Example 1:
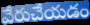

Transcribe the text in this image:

వేరుచేయడం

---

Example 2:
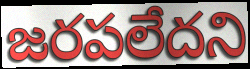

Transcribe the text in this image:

జరపలేదని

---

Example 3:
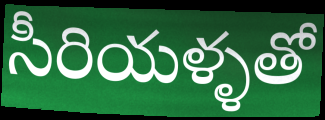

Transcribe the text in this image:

సీరియళ్ళతో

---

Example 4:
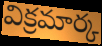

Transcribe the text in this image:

విక్రమార్క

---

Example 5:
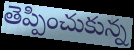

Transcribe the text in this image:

తెప్పించుకున్న